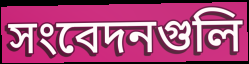
সংবেদনগুলি